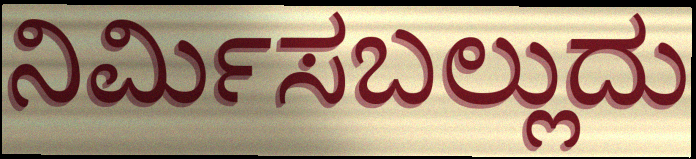
ನಿರ್ಮಿಸಬಲ್ಲುದು